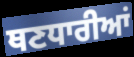
ਥਣਧਾਰੀਆਂ